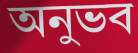
অনুভব